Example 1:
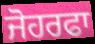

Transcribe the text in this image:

ਜੋਹਰਫਾ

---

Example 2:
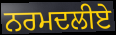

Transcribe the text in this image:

ਨਰਮਦਲੀਏ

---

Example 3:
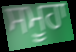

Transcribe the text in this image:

ਸਮੂਹਾ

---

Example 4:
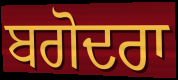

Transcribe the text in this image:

ਬਗੋਦਰਾ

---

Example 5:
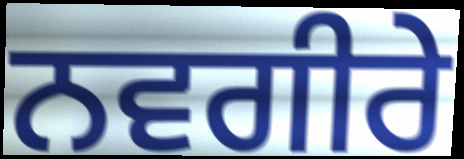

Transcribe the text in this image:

ਨਵਗੀਰੇ